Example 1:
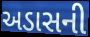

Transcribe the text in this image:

અડાસની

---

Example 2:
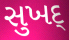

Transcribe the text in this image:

સુખદ્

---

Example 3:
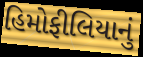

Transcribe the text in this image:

હિમોફીલિયાનું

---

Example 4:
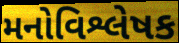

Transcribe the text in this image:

મનોવિશ્લેષક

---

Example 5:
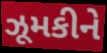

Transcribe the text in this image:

ઝૂમકીને